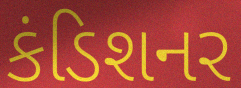
કંડિશનર